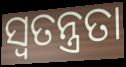
ସ୍ବତନ୍ତ୍ରତା